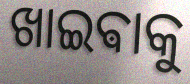
ଖାଇଵାକୁ